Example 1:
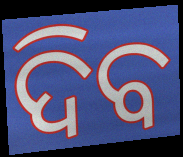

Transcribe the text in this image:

ଦିବ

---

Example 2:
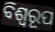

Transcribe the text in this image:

ବିଶ୍ବରୂପ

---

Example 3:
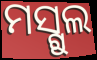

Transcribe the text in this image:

ମସ୍ଗୁଲ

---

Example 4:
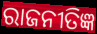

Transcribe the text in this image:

ରାଜନୀତିଜ୍ଞ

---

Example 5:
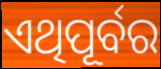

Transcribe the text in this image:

ଏଥିପୂର୍ବର